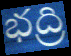
భద్రి